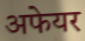
अफेयर